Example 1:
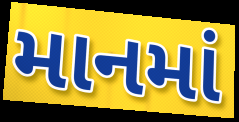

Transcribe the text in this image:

માનમાં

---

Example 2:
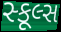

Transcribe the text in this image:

સ્કૂલ્સ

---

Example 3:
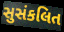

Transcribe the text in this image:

સુસંકલિત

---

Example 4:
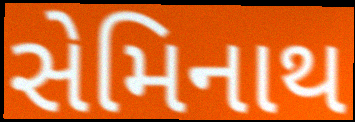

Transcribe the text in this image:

સેમિનાથ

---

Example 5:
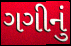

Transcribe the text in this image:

ગગીનું